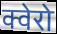
क्वेरो